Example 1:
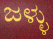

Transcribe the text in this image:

ಜಳ್ಳು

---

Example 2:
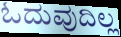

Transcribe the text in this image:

ಓದುವುದಿಲ್ಲ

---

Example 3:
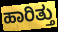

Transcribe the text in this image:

ಹಾರಿತ್ತು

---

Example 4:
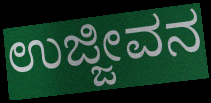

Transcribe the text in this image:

ಉಜ್ಜೀವನ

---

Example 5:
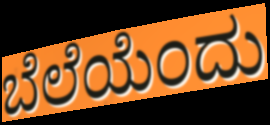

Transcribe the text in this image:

ಬೆಲೆಯೆಂದು